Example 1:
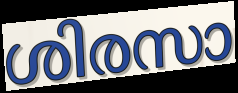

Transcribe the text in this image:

ശിരസാ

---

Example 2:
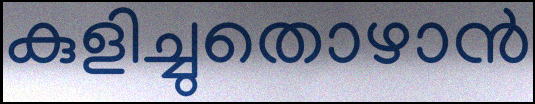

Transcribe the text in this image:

കുളിച്ചുതൊഴാൻ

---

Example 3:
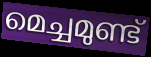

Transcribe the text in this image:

മെച്ചമുണ്ട്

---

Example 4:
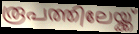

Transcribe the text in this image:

രൂപത്തിലേയ്ക്ക്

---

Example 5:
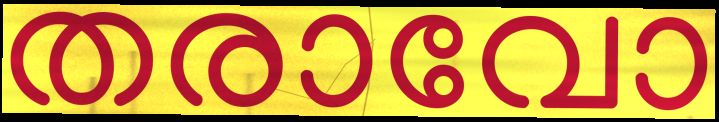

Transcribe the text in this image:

തരാവോ